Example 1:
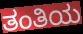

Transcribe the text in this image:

ತಂತಿಯ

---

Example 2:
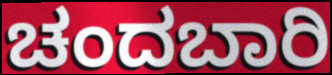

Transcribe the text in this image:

ಚಂದಬಾರಿ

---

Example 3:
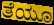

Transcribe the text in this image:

ತೆಯೂ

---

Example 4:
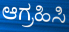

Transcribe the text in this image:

ಆಗ್ರಹಿಸಿ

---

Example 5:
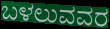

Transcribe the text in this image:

ಬಳಲುವವರ